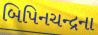
બિપિનચન્દ્રના